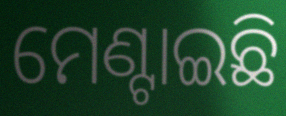
ମେଣ୍ଟାଇଛି